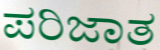
ಪರಿಜಾತ